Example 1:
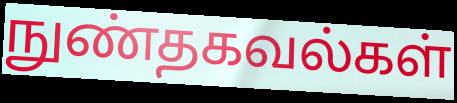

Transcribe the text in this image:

நுண்தகவல்கள்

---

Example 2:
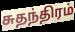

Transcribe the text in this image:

சுதந்திரம்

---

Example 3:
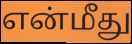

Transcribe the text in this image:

என்மீது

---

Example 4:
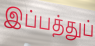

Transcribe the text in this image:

இப்பத்துப்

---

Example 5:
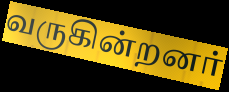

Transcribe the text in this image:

வருகின்றனர்